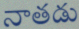
నాతడు